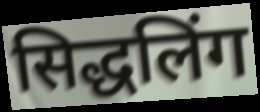
सिद्धलिंग